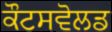
ਕੌਟਸਵੋਲਡ